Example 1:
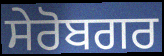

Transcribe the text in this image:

ਸੇਰੋਬਗਰ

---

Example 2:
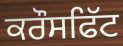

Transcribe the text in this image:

ਕਰੌਸਫਿੱਟ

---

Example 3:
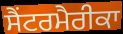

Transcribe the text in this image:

ਸੈਂਟਰਮੈਰੀਕਾ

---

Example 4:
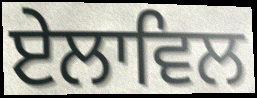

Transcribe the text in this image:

ਏਲਾਵਿਲ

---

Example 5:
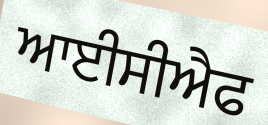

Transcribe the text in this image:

ਆਈਸੀਐਫ